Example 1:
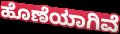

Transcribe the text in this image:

ಹೊಣೆಯಾಗಿವೆ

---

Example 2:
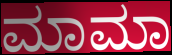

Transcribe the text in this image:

ಮಾಮಾ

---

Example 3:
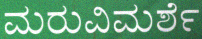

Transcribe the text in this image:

ಮರುವಿಮರ್ಶೆ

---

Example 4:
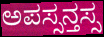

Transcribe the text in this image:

ಅಪಸ್ಸನ್ತಸ್ಸ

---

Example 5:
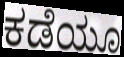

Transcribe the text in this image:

ಕಡೆಯೂ